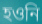
হওনি